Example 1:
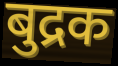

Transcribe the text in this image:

बुद्रक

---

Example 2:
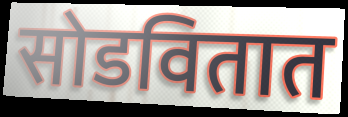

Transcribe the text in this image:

सोडवितात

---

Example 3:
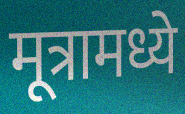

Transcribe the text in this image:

मूत्रामध्ये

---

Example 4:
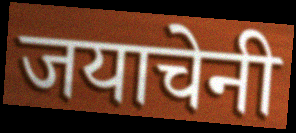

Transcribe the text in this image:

जयाचेनी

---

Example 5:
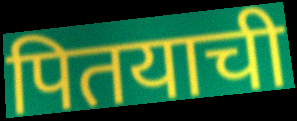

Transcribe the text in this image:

पितयाची